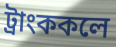
ট্রাংককলে